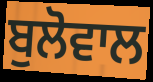
ਬੁਲੋਵਾਲ